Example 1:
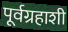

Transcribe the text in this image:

पूर्वग्रहाशी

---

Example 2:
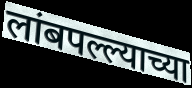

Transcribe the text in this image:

लांबपल्ल्याच्या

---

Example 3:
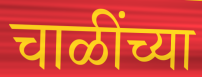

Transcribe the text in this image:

चाळींच्या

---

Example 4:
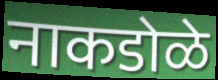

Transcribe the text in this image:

नाकडोळे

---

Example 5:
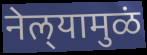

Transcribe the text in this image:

नेल्यामुळं